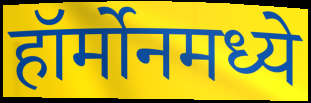
हॉर्मोनमध्ये